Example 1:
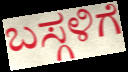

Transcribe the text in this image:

ಬಸ್ಗಳಿಗೆ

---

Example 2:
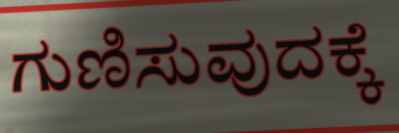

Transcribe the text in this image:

ಗುಣಿಸುವುದಕ್ಕೆ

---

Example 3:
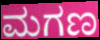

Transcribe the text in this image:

ಮಗಣ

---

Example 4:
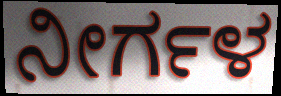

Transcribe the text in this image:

ನೀರ್ಗಳ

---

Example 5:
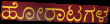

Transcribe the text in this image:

ಹೋರಾಟಗಳ